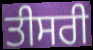
ਤੀਸਰੀ